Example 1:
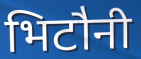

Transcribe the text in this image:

भिटौनी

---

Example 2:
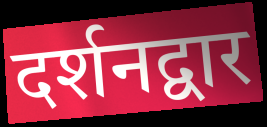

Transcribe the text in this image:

दर्शनद्वार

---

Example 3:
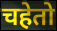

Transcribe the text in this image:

चहेतो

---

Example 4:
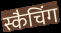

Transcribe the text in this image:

स्कैचिंग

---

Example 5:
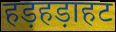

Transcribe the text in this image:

हड़हड़ाहट